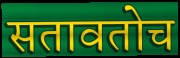
सतावतोच